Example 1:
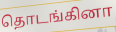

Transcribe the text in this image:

தொடங்கினா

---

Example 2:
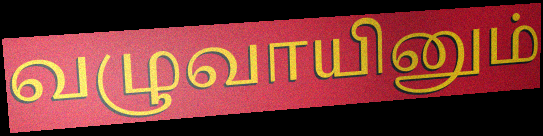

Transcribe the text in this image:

வழுவாயினும்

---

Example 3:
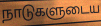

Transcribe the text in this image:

நாடுகளுடைய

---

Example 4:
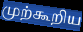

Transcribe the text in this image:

முற்கூறிய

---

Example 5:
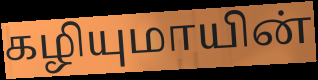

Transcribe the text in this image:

கழியுமாயின்